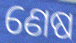
ଣେଷ